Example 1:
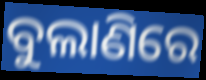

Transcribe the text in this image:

ବୁଲାଣିରେ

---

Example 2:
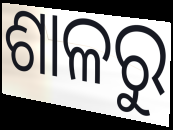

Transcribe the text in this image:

ଶାଳରୁ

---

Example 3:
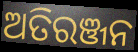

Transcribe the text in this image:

ଅତିରଞ୍ଜନ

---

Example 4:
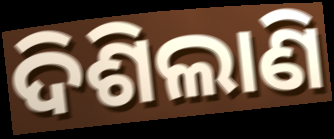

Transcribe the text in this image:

ଦିଶିଲାଣି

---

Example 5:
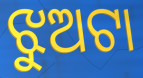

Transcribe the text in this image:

ଝୁଅଟା